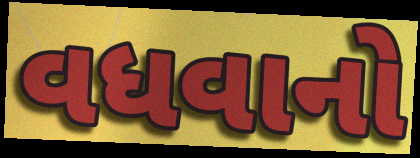
વધવાનો